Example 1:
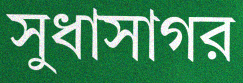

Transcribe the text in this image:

সুধাসাগর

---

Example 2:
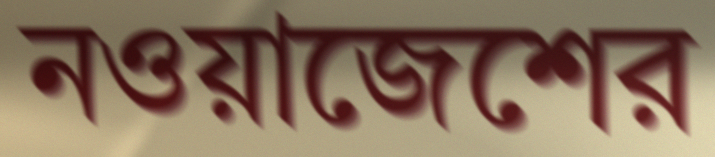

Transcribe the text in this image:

নওয়াজেশের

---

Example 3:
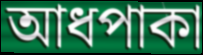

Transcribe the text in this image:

আধপাকা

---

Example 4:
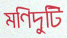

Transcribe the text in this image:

মণিদুটি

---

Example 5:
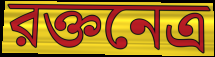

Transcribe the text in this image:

রক্তনেত্র